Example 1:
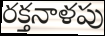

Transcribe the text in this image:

రక్తనాళపు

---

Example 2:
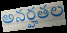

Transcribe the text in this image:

అనర్హతల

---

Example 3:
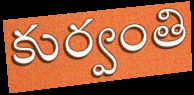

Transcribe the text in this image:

కుర్వంతి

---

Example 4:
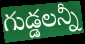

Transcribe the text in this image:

గుడ్డలన్నీ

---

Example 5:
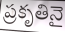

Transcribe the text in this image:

ప్రకృతినై